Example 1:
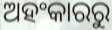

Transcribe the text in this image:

ଅହଂକାରରୁ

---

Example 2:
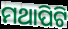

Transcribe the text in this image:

ମଥାପିଟି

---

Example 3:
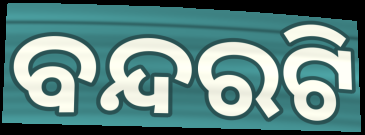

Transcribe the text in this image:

ବନ୍ଦରଟି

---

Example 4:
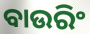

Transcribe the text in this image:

ବାଉରିଂ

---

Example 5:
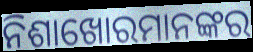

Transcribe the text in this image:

ନିଶାଖୋରମାନଙ୍କର